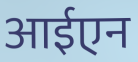
आईएन